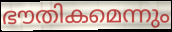
ഭൗതികമെന്നും